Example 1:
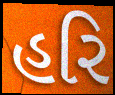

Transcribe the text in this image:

હરિ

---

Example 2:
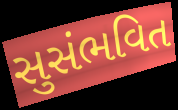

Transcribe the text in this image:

સુસંભવિત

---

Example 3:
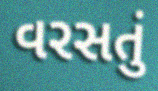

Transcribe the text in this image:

વરસતું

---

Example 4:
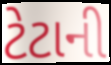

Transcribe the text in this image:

ટેટાની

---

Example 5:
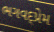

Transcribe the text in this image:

ભગવદ્પ્રેમ